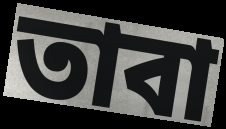
তাবা